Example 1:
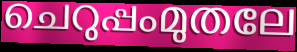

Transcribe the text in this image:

ചെറുപ്പംമുതലേ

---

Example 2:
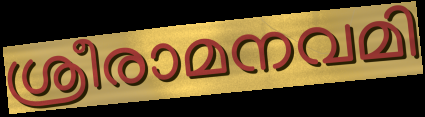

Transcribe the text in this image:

ശ്രീരാമനവമി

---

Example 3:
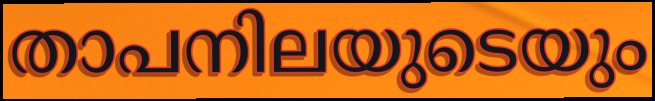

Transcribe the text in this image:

താപനിലയുടെയും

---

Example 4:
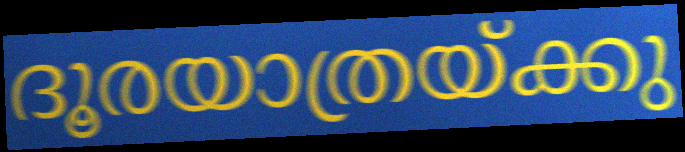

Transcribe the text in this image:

ദൂരയാത്രയ്ക്കു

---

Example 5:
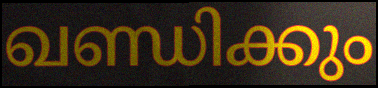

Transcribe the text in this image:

ഖണ്ഡിക്കും